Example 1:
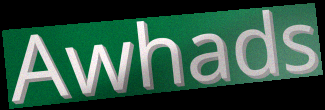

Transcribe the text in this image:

Awhads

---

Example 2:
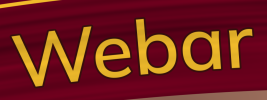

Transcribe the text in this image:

Webar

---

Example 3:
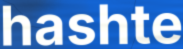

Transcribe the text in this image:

hashte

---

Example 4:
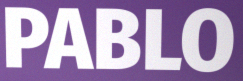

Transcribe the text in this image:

PABLO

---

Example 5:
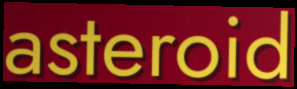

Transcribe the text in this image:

asteroid